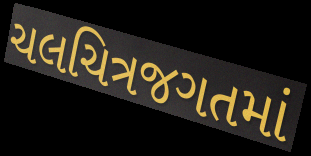
ચલચિત્રજગતમાં